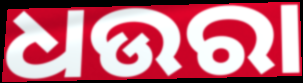
ଧଉରା